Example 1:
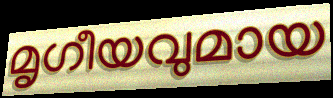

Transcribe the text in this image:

മൃഗീയവുമായ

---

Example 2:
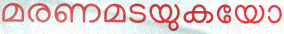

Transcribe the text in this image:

മരണമടയുകയോ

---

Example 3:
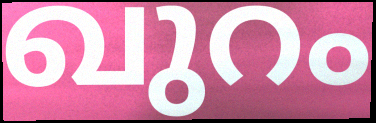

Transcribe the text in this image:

ഖുറം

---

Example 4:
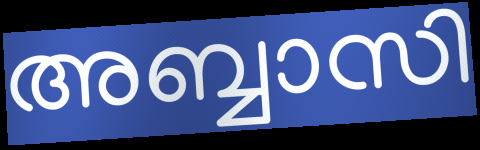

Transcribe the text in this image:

അബ്ബാസി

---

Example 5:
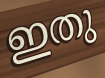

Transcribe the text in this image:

ഇതു